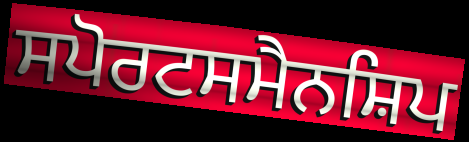
ਸਪੋਰਟਸਮੈਨਸ਼ਿਪ